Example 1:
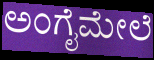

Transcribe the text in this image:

ಅಂಗೈಮೇಲೆ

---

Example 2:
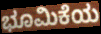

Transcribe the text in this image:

ಭೂಮಿಕೆಯ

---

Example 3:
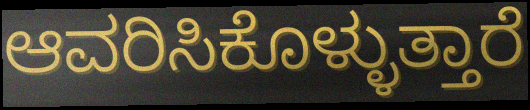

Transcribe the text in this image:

ಆವರಿಸಿಕೊಳ್ಳುತ್ತಾರೆ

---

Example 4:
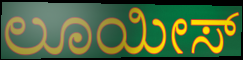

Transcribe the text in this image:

ಲೂಯೀಸ್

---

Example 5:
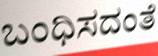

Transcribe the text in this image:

ಬಂಧಿಸದಂತೆ